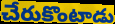
చేరుకొంటాడు